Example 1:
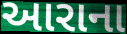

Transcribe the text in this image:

આરાના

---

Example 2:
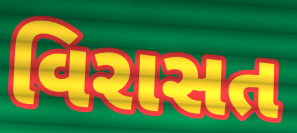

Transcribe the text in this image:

વિરાસત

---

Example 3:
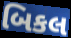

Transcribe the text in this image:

બિકલ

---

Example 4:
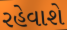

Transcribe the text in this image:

રહેવાશે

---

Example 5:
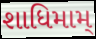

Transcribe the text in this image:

શાધિમામ્